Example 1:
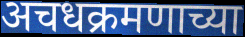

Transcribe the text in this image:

अचधक्रमणाच्या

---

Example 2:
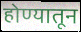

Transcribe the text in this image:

होण्यातून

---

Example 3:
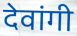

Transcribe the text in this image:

देवांगी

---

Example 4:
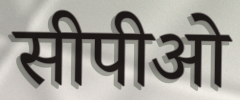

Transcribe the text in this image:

सीपीओ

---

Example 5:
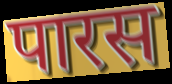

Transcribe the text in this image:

पारस